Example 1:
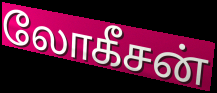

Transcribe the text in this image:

லோகீசன்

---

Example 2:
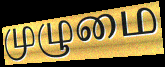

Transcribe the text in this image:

முழுமை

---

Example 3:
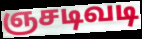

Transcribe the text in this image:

ஞசடிவடி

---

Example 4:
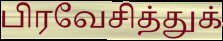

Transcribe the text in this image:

பிரவேசித்துக்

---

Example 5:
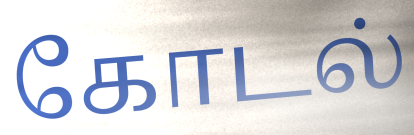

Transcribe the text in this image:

கோடல்